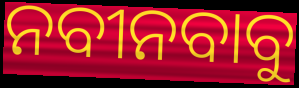
ନବୀନବାବୁ